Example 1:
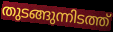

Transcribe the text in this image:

തുടങ്ങുന്നിടത്ത്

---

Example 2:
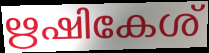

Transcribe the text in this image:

ഋഷികേശ്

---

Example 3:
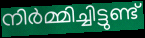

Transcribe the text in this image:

നിർമ്മിച്ചിട്ടുണ്ട്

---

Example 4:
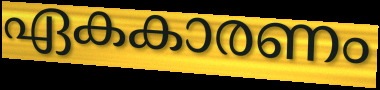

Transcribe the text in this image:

ഏകകാരണം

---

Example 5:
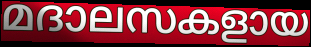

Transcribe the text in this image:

മദാലസകളായ